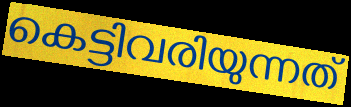
കെട്ടിവരിയുന്നത്